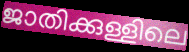
ജാതിക്കുള്ളിലെ